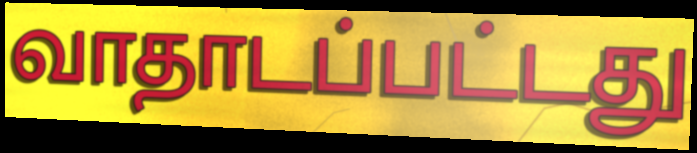
வாதாடப்பட்டது